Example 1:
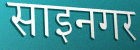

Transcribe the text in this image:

साइनगर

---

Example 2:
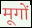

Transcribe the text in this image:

मूगों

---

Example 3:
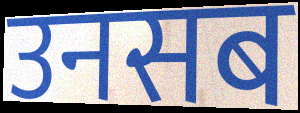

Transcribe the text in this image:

उनसब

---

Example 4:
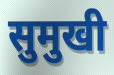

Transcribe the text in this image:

सुमुखी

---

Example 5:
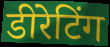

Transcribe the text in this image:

डीरेटिंग